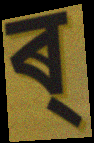
ৰ্